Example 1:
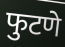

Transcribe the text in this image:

फुटणे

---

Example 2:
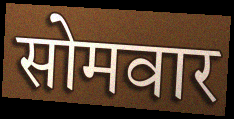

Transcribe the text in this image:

सोमवार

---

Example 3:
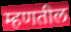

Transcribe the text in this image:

म्हणतील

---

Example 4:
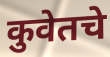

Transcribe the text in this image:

कुवेतचे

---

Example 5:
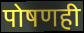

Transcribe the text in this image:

पोषणही